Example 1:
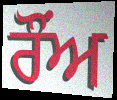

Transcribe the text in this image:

ਰੌਂਅ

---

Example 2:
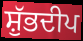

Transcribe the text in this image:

ਸ਼ੁੱਭਦੀਪ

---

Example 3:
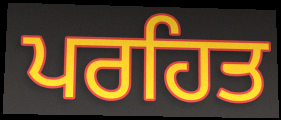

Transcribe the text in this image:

ਪਰਹਿਤ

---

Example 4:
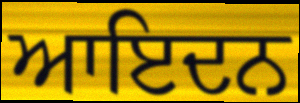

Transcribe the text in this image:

ਆਇਦਨ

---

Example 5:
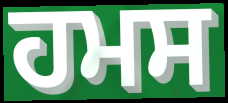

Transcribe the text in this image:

ਹਮਸ